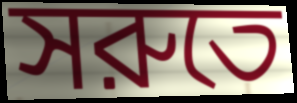
সৰুতে